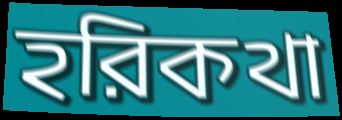
হরিকথা